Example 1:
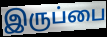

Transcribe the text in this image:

இருப்பை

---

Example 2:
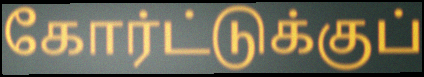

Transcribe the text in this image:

கோர்ட்டுக்குப்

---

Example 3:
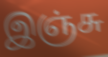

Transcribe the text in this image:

இஞ்சு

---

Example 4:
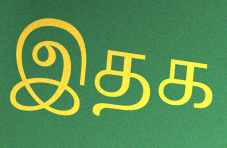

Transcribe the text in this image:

இதக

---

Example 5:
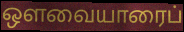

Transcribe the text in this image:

ஔவையாரைப்